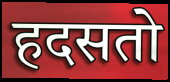
हदसतो